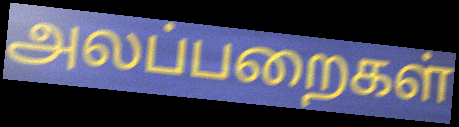
அலப்பறைகள்